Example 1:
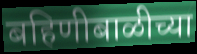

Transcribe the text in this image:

बहिणीबाळीच्या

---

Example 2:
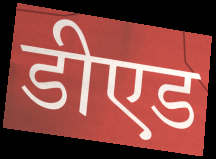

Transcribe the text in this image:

डीएड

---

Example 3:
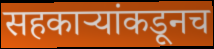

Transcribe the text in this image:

सहकार्‍यांकडूनच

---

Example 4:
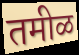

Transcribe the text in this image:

तमीळ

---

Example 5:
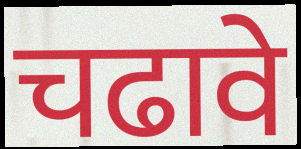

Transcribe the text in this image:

चढावे